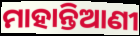
ମାହାନ୍ତିଆଣୀ